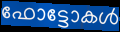
ഫോട്ടോകൾ